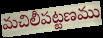
మచిలీపట్టణము